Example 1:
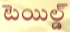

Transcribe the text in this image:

టెయిల్డ్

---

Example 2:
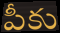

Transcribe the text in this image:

పీకు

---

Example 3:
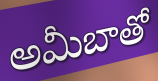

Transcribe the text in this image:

అమీబాతో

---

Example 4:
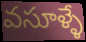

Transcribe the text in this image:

వసూళ్ళే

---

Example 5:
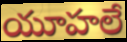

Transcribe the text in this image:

యూహలే